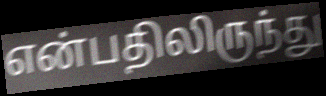
என்பதிலிருந்து